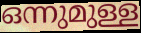
ഒന്നുമുള്ള